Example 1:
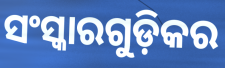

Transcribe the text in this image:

ସଂସ୍କାରଗୁଡ଼ିକର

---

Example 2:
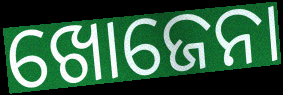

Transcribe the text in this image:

ଖୋଜେନା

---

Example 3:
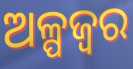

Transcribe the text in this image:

ଅଳ୍ପଜ୍ଵର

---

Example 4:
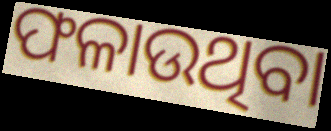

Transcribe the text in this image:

ଫଳାଉଥିବା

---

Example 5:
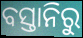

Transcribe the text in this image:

ବସ୍ତାନିରୁ